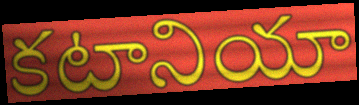
కటానియా